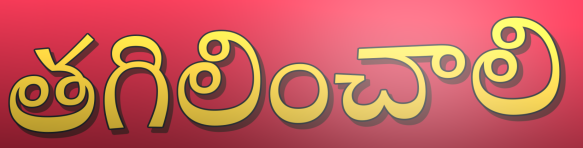
తగిలించాలి